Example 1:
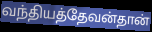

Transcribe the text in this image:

வந்தியத்தேவன்தான்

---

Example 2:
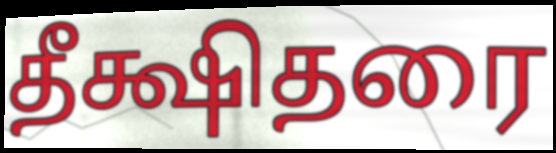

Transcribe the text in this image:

தீக்ஷிதரை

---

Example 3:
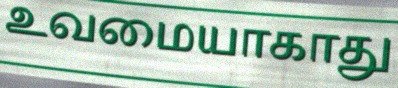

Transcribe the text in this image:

உவமையாகாது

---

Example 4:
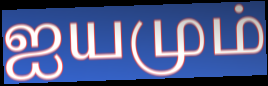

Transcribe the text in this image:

ஐயமும்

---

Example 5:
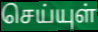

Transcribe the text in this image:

செய்யுள்